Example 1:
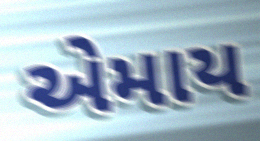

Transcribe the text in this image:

એમાય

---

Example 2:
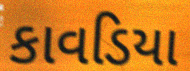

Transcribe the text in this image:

કાવડિયા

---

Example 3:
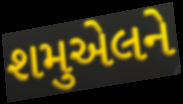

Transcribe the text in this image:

શમુએલને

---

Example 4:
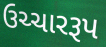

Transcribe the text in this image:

ઉચ્ચારરૂપ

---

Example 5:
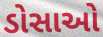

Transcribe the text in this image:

ડોસાઓ